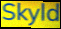
Skyld